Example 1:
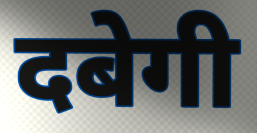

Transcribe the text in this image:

दबेगी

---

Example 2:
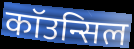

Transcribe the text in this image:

कॉउन्सिल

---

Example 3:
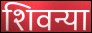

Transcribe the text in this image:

शिवन्या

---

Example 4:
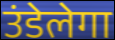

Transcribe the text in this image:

उंडेलेगा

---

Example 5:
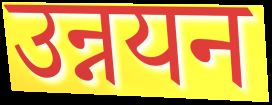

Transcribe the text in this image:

उन्नयन